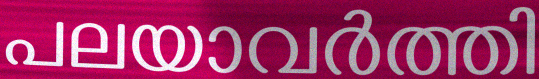
പലയാവർത്തി